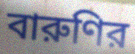
বারুণির